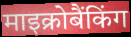
माइक्रोबैंकिंग